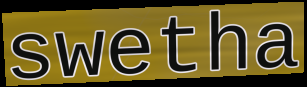
swetha